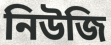
নিউজি